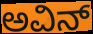
ಅವಿನ್